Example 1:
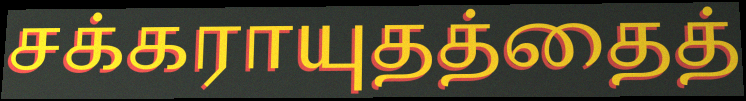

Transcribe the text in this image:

சக்கராயுதத்தைத்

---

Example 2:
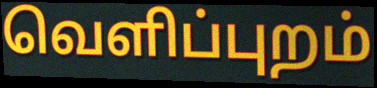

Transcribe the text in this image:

வெளிப்புறம்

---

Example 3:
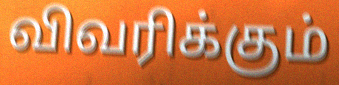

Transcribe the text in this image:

விவரிக்கும்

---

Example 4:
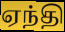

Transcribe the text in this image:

ஏந்தி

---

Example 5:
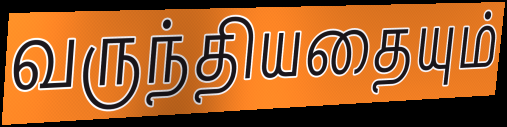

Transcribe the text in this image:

வருந்தியதையும்